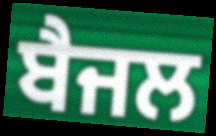
ਬੈਜਲ